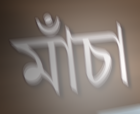
মাঁচা